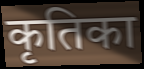
कृतिका